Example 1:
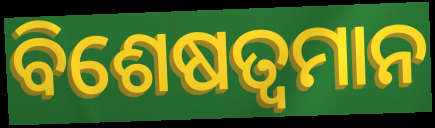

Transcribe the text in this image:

ବିଶେଷତ୍ଵମାନ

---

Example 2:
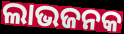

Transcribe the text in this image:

ଲାଭଜନକ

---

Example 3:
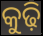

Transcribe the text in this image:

କୁଢ଼ି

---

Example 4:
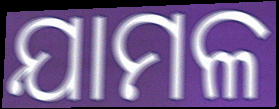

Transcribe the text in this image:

ଯାମଳ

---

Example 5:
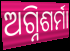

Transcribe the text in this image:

ଅଗ୍ନିଶର୍ମା